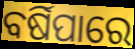
ବର୍ଷିପାରେ